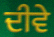
ਦੀਵੇ